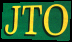
JTO